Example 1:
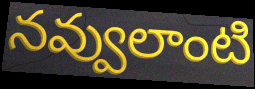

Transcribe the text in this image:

నవ్వులాంటి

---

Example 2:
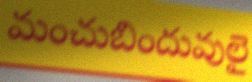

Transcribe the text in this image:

మంచుబిందువులై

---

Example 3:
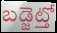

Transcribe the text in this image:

బడ్జెట్తో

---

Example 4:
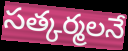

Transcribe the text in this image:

సత్కర్మలనే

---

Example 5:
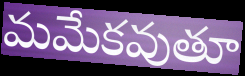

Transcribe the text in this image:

మమేకవుతూ